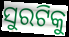
ସୁରଟିକୁ